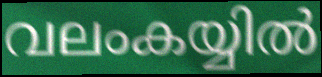
വലംകയ്യിൽ